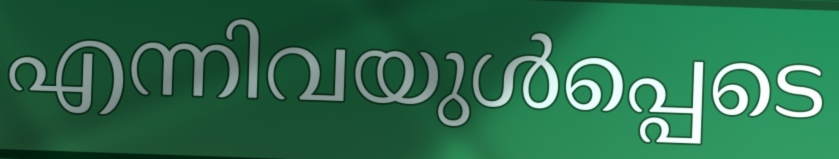
എന്നിവയുൾപ്പെടെ